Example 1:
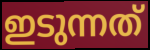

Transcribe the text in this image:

ഇടുന്നത്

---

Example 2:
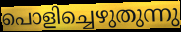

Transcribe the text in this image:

പൊളിച്ചെഴുതുന്നു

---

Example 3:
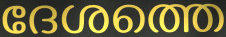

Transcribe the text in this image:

ദേശത്തെ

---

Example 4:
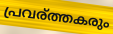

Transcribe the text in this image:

പ്രവര്ത്തകരും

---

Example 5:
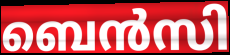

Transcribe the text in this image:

ബെൻസി